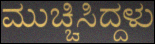
ಮುಚ್ಚಿಸಿದ್ದಳು